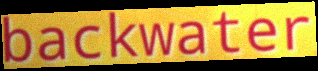
backwater